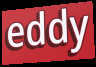
eddy